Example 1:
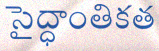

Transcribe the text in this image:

సైద్ధాంతికత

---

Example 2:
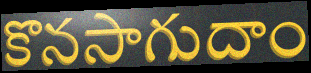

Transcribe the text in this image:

కొనసాగుదాం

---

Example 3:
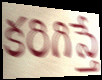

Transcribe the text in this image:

కరిగిస్తే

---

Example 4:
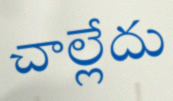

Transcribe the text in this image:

చాల్లేదు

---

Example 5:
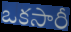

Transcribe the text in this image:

ఒకసారీ